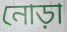
নোড়া